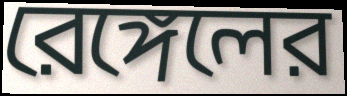
রেঙ্গেলের